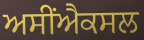
ਅਸੀਂਐਕਸਲ